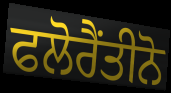
ਫਲੋਰੈਂਤੀਨੋ